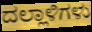
ದಲ್ಲಾಳಿಗಳು